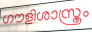
ഗൗളിശാസ്ത്രം